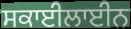
ਸਕਾਈਲਾਈਨ